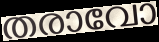
തരാവോ